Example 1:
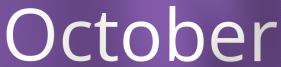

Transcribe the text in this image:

October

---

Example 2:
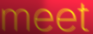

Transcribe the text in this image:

meet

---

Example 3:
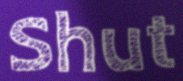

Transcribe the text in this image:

Shut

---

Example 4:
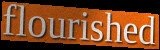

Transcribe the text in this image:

flourished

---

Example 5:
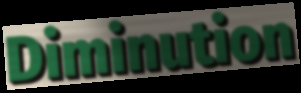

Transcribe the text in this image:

Diminution